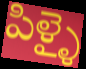
పిళ్ళై